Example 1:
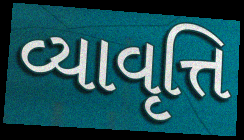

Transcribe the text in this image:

વ્યાવૃત્તિ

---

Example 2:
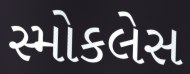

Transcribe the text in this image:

સ્મોકલેસ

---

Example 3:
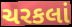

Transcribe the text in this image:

ચરકલાં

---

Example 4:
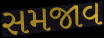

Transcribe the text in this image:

સમજાવ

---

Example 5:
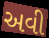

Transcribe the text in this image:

અવી